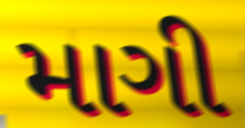
માગી